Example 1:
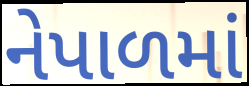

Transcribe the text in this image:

નેપાળમાં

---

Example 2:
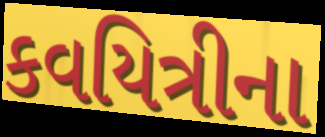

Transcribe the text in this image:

કવયિત્રીના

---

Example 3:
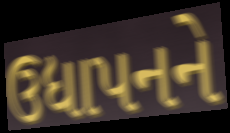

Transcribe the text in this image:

ઉદ્યાપનને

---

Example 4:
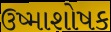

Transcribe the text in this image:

ઉષ્માશોષક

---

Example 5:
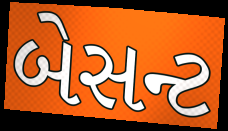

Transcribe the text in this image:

બેસન્ટ